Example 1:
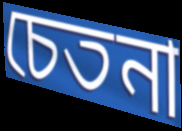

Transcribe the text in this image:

চেতনা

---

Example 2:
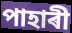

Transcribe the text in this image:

পাহাৰী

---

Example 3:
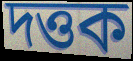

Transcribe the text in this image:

দত্তক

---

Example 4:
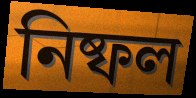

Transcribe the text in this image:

নিষ্ফল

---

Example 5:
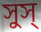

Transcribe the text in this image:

সুস্